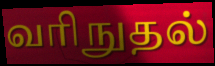
வரிநுதல்